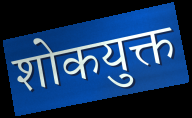
शोकयुक्त